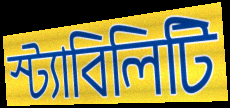
স্ট্যাবিলিটি